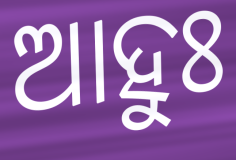
ଆହୁଃ